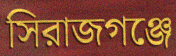
সিরাজগঞ্জে